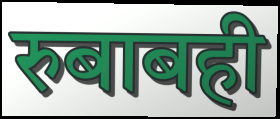
रुबाबही